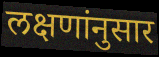
लक्षणांनुसार